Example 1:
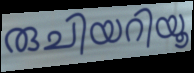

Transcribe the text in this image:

രുചിയറിയൂ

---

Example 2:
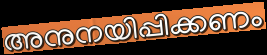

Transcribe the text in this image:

അനുനയിപ്പിക്കണം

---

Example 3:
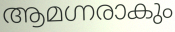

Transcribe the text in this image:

ആമഗ്നരാകും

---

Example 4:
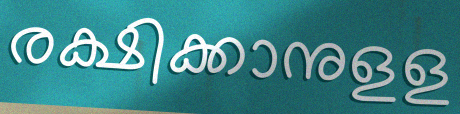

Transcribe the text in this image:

രക്ഷിക്കാനുളള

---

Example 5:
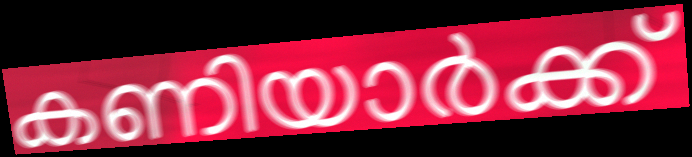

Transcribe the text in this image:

കണിയാർക്ക്